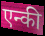
एन्की